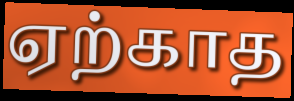
ஏற்காத